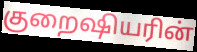
குறைஷியரின்